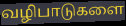
வழிபாடுகளை